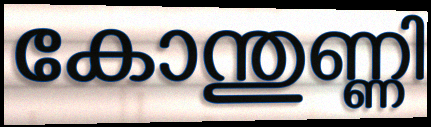
കോന്തുണ്ണി